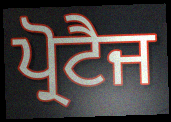
ਪ੍ਰੋਟੈਜ